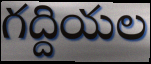
గద్దియల